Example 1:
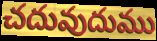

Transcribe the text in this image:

చదువుదుము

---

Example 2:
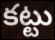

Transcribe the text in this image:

కట్టు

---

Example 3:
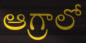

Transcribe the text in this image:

ఆగ్రాలో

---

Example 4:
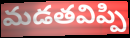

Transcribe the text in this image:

మడతవిప్పి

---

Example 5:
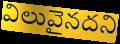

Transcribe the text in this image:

విలువైనదని